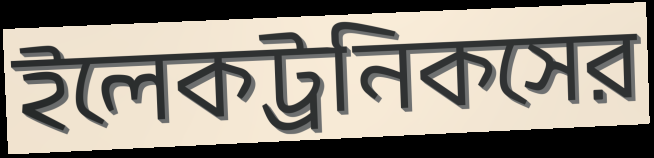
ইলেকট্রনিকসের